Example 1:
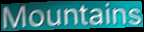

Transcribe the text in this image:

Mountains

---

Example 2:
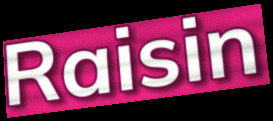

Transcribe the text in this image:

Raisin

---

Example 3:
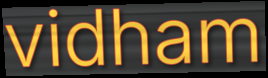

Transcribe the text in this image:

vidham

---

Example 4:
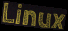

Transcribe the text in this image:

Linux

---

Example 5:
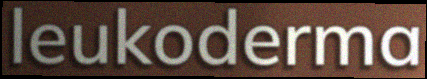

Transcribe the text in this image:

leukoderma